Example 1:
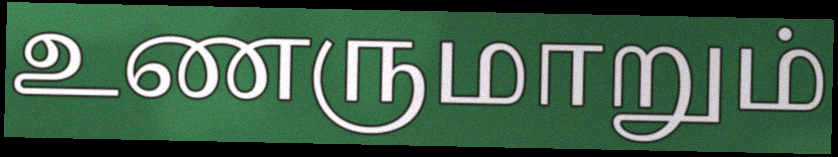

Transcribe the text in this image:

உணருமாறும்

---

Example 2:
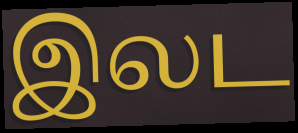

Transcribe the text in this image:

இலட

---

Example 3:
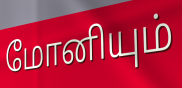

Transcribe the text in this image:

மோனியும்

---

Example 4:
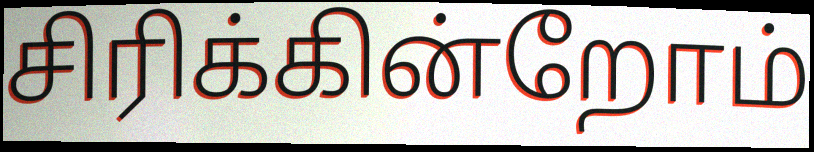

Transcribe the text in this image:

சிரிக்கின்றோம்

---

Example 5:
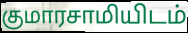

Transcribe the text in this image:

குமாரசாமியிடம்